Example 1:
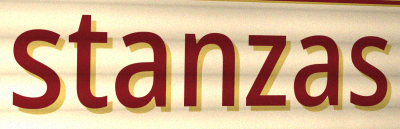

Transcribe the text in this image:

stanzas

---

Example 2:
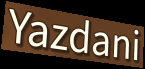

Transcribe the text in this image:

Yazdani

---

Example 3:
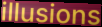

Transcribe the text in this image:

illusions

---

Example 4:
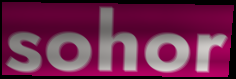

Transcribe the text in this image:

sohor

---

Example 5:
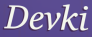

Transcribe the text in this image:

Devki